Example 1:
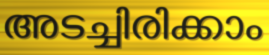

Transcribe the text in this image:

അടച്ചിരിക്കാം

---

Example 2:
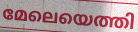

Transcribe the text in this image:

മേലെയെത്തി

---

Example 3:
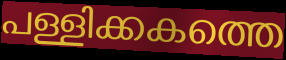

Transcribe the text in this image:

പള്ളിക്കകത്തെ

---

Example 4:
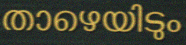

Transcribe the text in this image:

താഴെയിടും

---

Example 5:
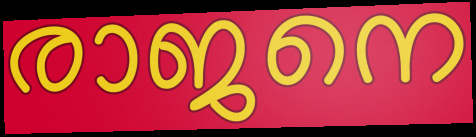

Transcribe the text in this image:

രാജനെ